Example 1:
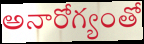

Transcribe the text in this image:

అనారోగ్యంతో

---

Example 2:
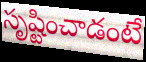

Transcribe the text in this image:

సృష్టించాడంటే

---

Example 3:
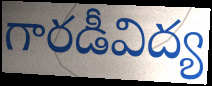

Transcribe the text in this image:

గారడీవిద్య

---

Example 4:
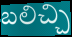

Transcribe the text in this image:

బలిచ్చి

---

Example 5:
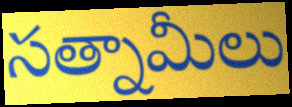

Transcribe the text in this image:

సత్నామీలు